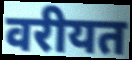
वरीयत